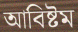
আবিষ্টম